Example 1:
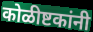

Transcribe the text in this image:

कोळीष्टकांनी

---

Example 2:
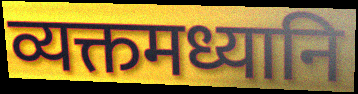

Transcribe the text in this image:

व्यक्तमध्यानि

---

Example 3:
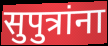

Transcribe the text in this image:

सुपुत्रांना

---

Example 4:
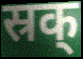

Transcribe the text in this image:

स्रक्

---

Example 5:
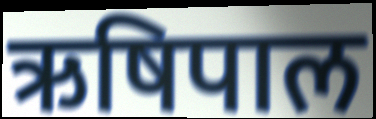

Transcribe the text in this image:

ऋषिपाल